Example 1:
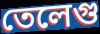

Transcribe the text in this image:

তেলেগু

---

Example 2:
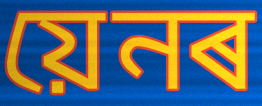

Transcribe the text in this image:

য়েনৰ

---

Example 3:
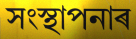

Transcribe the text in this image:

সংস্থাপনাৰ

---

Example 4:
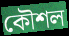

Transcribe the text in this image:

কৌশল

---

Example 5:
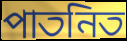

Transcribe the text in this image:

পাতনিত